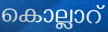
കൊല്ലാറ്